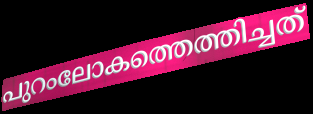
പുറംലോകത്തെത്തിച്ചത്